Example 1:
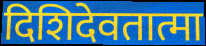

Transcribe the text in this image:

दिशिदेवतात्मा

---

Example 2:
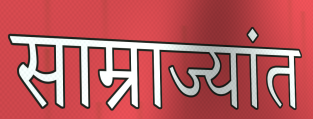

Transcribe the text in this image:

साम्राज्यांत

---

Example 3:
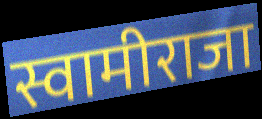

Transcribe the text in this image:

स्वामीराजा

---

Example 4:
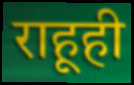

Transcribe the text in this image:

राहूही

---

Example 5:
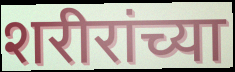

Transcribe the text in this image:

शरीरांच्या